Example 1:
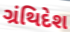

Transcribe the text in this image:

ગ્રંથિદેશ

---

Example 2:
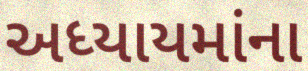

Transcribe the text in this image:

અધ્યાયમાંના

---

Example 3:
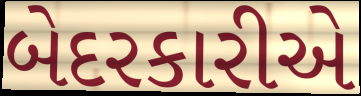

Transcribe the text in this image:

બેદરકારીએ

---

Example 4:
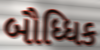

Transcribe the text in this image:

બૌધ્ધિક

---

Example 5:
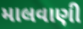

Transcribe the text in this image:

માલવાણી